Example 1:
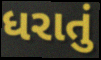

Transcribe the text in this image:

ધરાતું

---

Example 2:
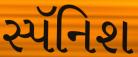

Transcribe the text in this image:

સ્પૅનિશ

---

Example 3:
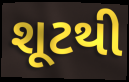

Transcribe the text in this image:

શૂટથી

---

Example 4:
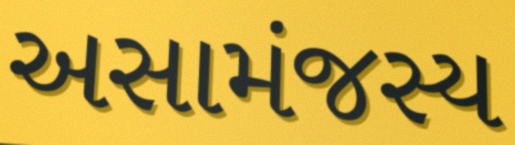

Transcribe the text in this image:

અસામંજસ્ય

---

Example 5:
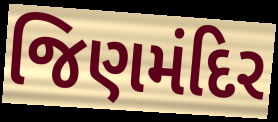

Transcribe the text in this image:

જિણમંદિર